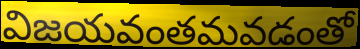
విజయవంతమవడంతో